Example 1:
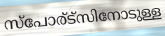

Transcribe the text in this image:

സ്പോര്ട്സിനോടുള്ള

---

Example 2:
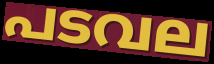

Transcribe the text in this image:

പടവല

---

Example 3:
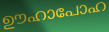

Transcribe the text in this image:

ഊഹാപോഹ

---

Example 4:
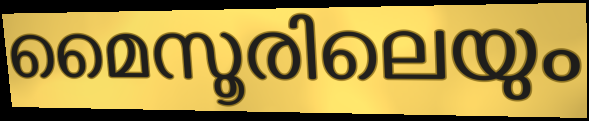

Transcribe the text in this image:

മൈസൂരിലെയും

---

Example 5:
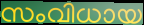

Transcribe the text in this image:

സംവിധായ